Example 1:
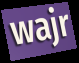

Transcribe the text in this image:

wajr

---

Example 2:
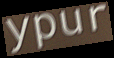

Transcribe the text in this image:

ypur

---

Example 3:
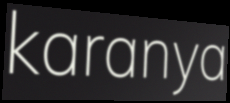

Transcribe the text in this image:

karanya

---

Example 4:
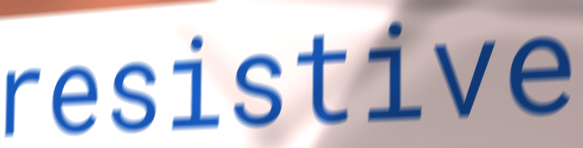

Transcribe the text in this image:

resistive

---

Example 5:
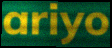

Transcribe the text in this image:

ariyo